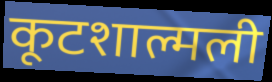
कूटशाल्मली